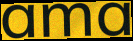
ama